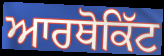
ਆਰਥੋਕਿੱਟ